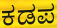
ಕಡಪ